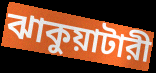
ঝাকুয়াটারী